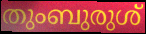
തുംബുരുശ്